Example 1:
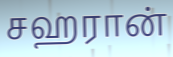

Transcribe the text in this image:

சஹரான்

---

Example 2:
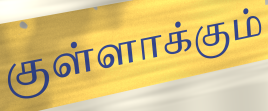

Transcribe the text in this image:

குள்ளாக்கும்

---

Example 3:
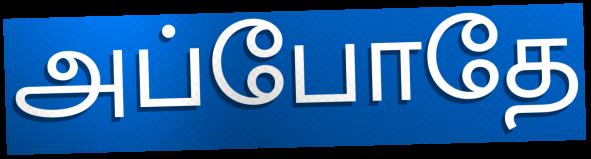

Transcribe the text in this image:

அப்போதே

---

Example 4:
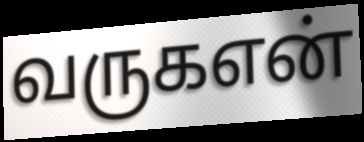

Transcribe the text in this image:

வருகஎன்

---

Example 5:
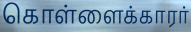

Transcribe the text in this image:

கொள்ளைக்காரர்